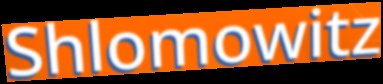
Shlomowitz